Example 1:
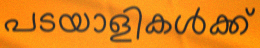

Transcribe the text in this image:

പടയാളികൾക്ക്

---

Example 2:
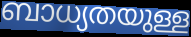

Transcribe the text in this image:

ബാധ്യതയുള്ള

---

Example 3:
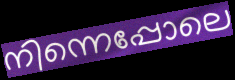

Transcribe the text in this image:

നിന്നെപ്പോലെ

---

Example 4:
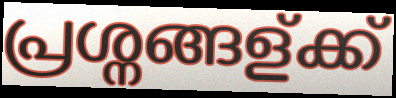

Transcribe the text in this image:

പ്രശ്നങ്ങള്ക്ക്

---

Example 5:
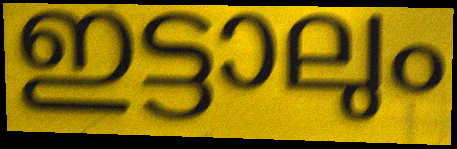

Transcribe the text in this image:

ഇട്ടാലും